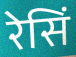
रेसिं